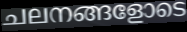
ചലനങ്ങളോടെ